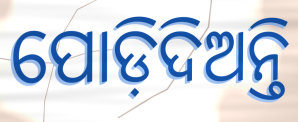
ପୋଡ଼ିଦିଅନ୍ତି